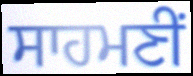
ਸਾਹਮਣੀਂ